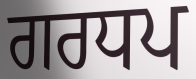
ਗਰਧਪ